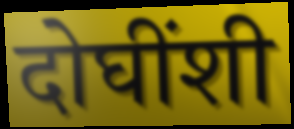
दोघींशी